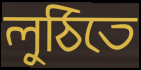
লুঠিতে